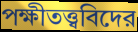
পক্ষীতত্ত্ববিদের